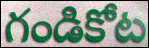
గండికోట